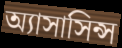
অ্যাসাসিন্স